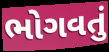
ભોગવતું